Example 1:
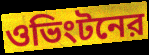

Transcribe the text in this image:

ওভিংটনের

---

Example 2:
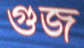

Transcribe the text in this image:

গুজ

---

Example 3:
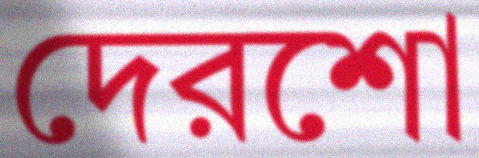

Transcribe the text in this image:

দেরশো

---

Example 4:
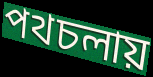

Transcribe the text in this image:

পথচলায়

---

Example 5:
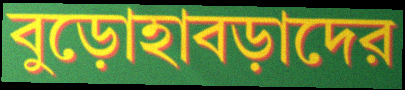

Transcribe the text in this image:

বুড়োহাবড়াদের